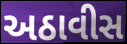
અઠાવીસ